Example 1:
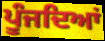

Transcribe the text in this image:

ਪੂੰਜਦਿਆਂ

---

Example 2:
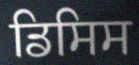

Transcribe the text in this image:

ਡਿਸਿਸ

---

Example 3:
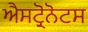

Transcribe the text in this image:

ਐਸਟ੍ਰੋਨੋਟਸ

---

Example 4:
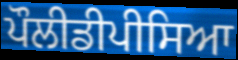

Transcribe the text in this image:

ਪੌਲੀਡੀਪੀਸਿਆ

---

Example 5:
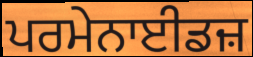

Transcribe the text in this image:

ਪਰਮੇਨਾਈਡਜ਼